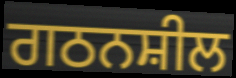
ਗਠਨਸ਼ੀਲ